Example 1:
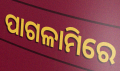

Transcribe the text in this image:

ପାଗଳାମିରେ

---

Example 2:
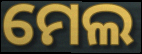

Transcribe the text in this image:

ମେଲ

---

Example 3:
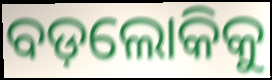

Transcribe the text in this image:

ବଡ଼ଲୋକିକୁ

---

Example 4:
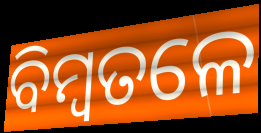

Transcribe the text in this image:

ବିମ୍ବତଳେ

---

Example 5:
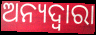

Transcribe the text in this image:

ଅନ୍ୟଦ୍ୱାରା